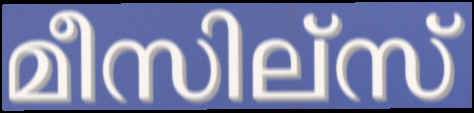
മീസില്സ്